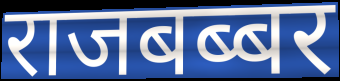
राजबब्बर